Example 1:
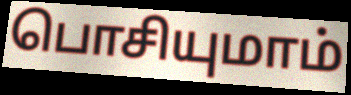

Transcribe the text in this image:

பொசியுமாம்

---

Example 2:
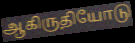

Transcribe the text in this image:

ஆகிருதியோடு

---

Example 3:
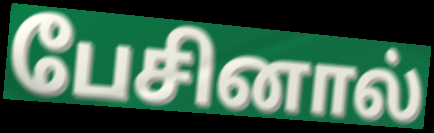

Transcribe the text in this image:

பேசினால்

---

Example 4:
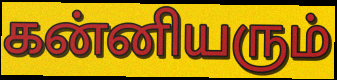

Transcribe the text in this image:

கன்னியரும்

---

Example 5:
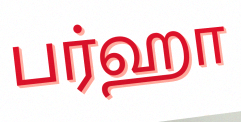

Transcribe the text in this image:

பர்ஹா